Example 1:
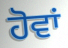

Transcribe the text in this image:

ਹੋਵਾਂ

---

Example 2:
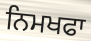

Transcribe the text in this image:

ਨਿਮਖਫਾ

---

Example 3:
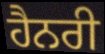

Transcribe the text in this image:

ਹੈਨਰੀ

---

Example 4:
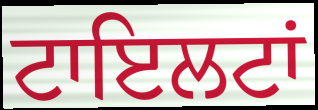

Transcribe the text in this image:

ਟਾਇਲਟਾਂ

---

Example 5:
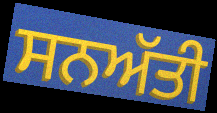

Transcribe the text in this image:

ਸਨਅੱਤੀ